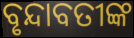
ବୃନ୍ଦାବତୀଙ୍କ